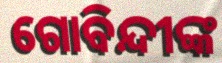
ଗୋବିନ୍ଦୀଙ୍କ